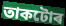
তাকটোৰ